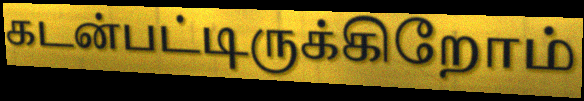
கடன்பட்டிருக்கிறோம்